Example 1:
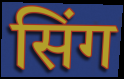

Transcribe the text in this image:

सिंग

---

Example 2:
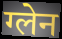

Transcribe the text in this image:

ग्लेन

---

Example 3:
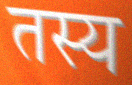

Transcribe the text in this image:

तस्य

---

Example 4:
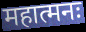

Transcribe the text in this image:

महात्मनः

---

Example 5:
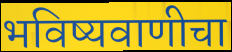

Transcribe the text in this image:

भविष्यवाणीचा